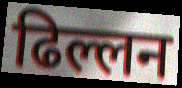
ढिल्लन